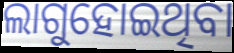
ଲାଗୁହୋଇଥିବା